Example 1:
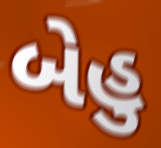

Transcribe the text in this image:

બેહુ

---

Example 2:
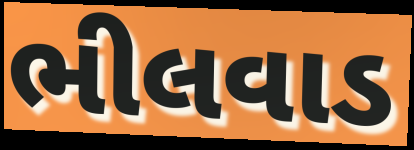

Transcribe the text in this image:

ભીલવાડ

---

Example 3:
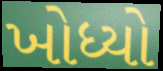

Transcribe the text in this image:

ખોધ્યો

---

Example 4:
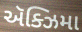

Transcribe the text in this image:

ઍક્ઝિમા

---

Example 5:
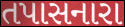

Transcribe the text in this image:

તપાસનારા